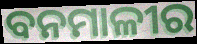
ବନମାଳୀର